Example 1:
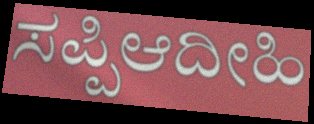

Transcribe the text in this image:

ಸಪ್ಪಿಆದೀಹಿ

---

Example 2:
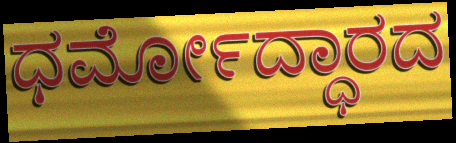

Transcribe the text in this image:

ಧರ್ಮೋದ್ಧಾರದ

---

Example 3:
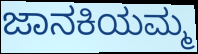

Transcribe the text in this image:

ಜಾನಕಿಯಮ್ಮ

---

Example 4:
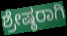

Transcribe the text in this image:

ಶ್ರೇಷ್ಠರಾಗಿ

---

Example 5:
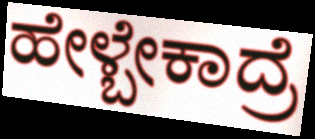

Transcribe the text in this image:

ಹೇಳ್ಬೇಕಾದ್ರೆ